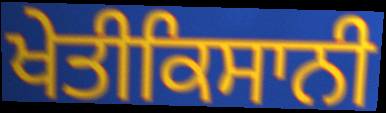
ਖੇਤੀਕਿਸਾਨੀ